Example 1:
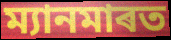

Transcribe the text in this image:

ম্যানমাৰত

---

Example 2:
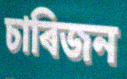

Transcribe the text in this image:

চাৰিজন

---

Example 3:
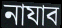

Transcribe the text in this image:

নাযাব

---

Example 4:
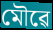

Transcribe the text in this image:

মৌৱে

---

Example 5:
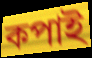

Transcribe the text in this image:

কপাই